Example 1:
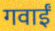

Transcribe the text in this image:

गवाईं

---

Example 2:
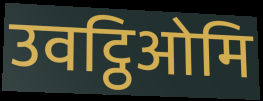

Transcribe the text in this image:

उवट्ठिओमि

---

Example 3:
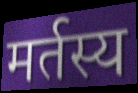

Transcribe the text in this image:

मर्तस्य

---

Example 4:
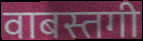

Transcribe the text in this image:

वाबस्तगी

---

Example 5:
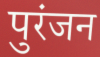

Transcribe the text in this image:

पुरंजन